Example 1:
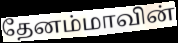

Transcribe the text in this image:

தேனம்மாவின்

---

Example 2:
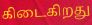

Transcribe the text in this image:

கிடைகிறது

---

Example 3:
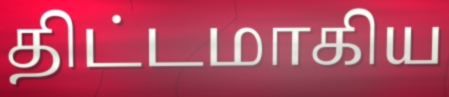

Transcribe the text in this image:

திட்டமாகிய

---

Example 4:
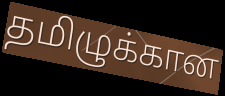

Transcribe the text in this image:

தமிழுக்கான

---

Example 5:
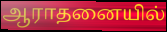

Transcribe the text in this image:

ஆராதனையில்